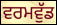
ਵਰਮਵੁੱਡ